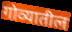
गोव्यातील